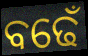
ବଢେଁ